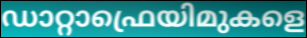
ഡാറ്റാഫ്രെയിമുകളെ